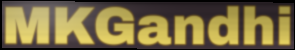
MKGandhi